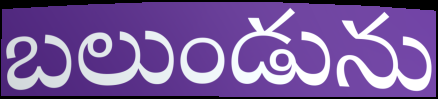
బలుండును